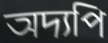
অদ্যপি